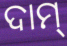
ଦାମ୍